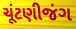
ચૂંટણીજંગ